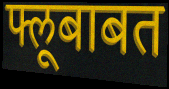
फ्लूबाबत